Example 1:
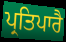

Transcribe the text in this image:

ਪ੍ਰਤਿਪਾਰੈ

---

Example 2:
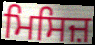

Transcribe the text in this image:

ਮਿਸਿਜ਼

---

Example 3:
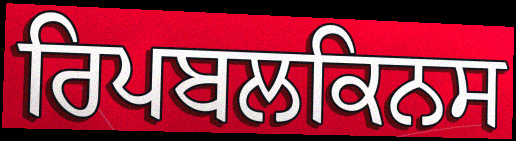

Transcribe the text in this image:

ਰਿਪਬਲਕਿਨਸ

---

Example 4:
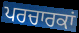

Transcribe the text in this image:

ਪਰਚਾਰਕਾਂ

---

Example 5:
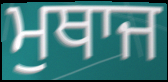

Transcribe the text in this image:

ਮੁਥਾਜ